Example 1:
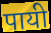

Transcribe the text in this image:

पायी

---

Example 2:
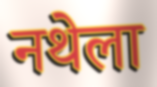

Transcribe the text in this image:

नथेला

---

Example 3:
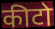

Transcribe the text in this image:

कीटो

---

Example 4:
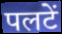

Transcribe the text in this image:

पलटें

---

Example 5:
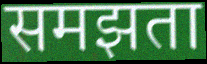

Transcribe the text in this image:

समझता